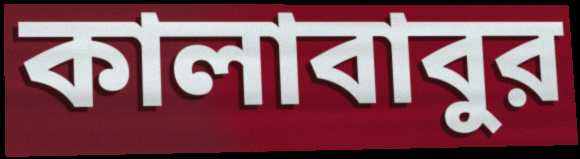
কালাবাবুর